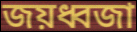
জয়ধ্বজা